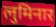
लुमिनार